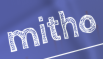
mitho